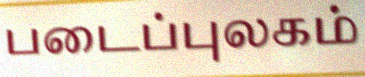
படைப்புலகம்